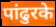
पांढुरके